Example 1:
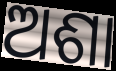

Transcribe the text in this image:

ଅଶା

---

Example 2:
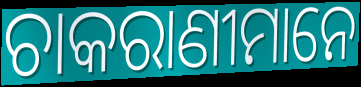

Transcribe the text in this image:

ଚାକରାଣୀମାନେ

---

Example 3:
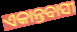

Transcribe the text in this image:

ଏକାନ୍ତବାସୀ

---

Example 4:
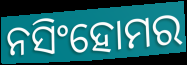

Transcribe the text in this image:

ନସିଂହୋମର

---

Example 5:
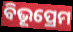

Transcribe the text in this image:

ବିଭୂପ୍ରେମ